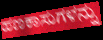
ಹಣಕಾಸುಗಳನ್ನು